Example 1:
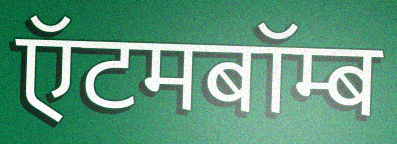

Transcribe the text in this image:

ऍटमबॉम्ब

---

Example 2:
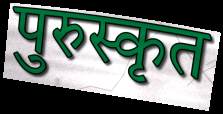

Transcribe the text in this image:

पुरुस्कृत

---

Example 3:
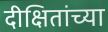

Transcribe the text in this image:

दीक्षितांच्या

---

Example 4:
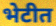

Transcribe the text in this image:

भेटीत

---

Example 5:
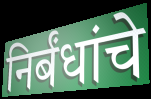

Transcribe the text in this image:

निर्बंधांचे